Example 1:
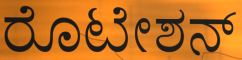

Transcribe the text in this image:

ರೊಟೇಶನ್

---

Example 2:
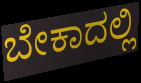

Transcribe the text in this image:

ಬೇಕಾದಲ್ಲಿ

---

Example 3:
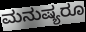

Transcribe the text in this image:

ಮನುಷ್ಯರೂ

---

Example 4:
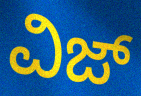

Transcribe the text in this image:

ವಿಜ್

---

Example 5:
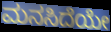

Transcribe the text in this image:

ಮನಸಿದೆಯೇ